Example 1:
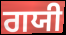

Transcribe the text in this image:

ਗਯੀ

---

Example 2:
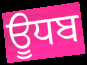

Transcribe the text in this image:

ਊਧਬ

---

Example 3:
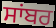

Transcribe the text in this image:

ਸਾਂਬਰ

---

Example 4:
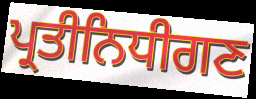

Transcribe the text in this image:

ਪ੍ਰਤੀਨਿਧੀਗਣ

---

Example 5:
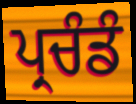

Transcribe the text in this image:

ਪ੍ਰਚੰਡੰ